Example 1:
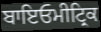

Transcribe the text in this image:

ਬਾਇਓਮੀਟ੍ਰਿਕ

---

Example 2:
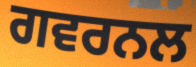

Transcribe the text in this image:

ਗਵਰਨਲ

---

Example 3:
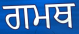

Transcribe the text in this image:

ਗਮਥ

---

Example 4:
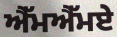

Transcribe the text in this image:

ਐੱਮਐੱਮਏ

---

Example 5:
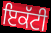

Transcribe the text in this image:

ਇਕੱਟੀ